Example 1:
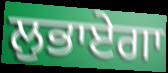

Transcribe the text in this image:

ਲੁਭਾਏਗਾ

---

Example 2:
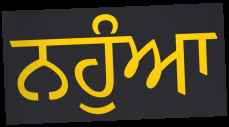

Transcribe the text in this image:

ਨਹੁੰਆ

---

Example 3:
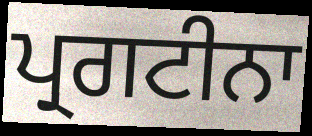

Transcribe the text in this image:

ਪ੍ਰਗਟੀਨਾ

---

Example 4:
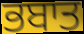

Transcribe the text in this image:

ਭਬਾਤ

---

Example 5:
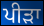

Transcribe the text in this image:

ਪੀੜਾ